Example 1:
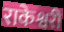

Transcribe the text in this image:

राकेश्वरी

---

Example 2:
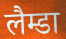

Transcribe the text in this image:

लैम्डा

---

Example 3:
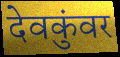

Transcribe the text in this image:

देवकुंवर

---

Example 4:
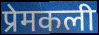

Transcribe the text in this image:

प्रेमकली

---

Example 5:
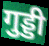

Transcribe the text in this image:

गुड्डी